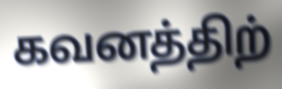
கவனத்திற்